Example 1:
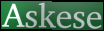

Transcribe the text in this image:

Askese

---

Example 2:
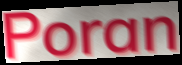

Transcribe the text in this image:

Poran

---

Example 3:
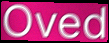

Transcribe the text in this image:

Oved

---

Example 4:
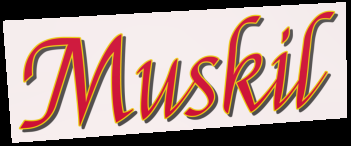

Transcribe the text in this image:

Muskil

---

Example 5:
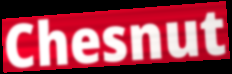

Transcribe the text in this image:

Chesnut